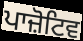
ਪਾਜ਼ੋਟਿਵ